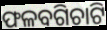
ଫଳବଗିଚାଟି